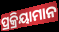
ପ୍ରକ୍ରିୟାମାନ